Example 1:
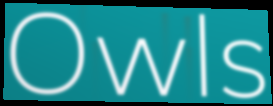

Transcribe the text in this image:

Owls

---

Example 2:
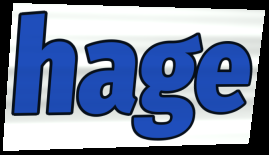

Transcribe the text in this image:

hage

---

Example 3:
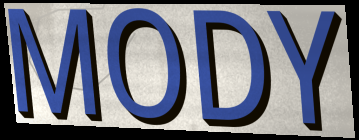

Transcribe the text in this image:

MODY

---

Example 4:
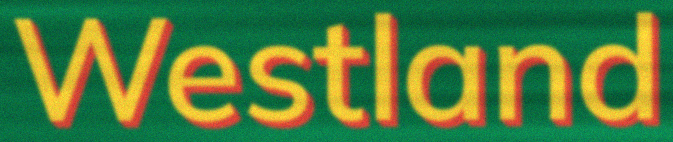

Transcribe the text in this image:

Westland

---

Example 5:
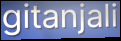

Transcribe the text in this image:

gitanjali